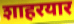
शाहरयार